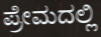
ಪ್ರೇಮದಲ್ಲಿ